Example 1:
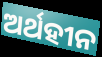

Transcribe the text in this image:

ଅର୍ଥହୀନ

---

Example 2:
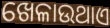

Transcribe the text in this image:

ଖେଳାଉଥାଏ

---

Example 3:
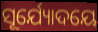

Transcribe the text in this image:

ସୂର୍ଯ୍ୟୋଦୟେ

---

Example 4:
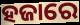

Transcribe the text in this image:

ହଜାରେ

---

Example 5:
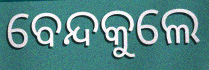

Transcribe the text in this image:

ବେନ୍ଦକୁଲେ